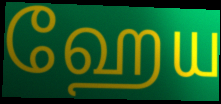
ஹேய